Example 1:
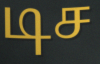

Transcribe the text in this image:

டிச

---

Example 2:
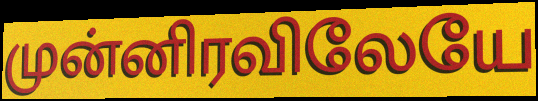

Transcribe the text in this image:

முன்னிரவிலேயே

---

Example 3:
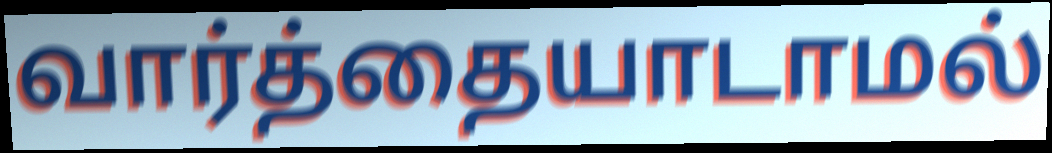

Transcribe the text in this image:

வார்த்தையாடாமல்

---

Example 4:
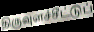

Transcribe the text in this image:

திருவுளச்சீட்டுப்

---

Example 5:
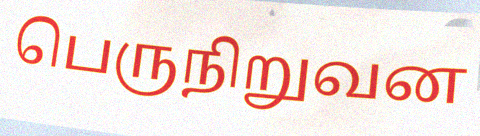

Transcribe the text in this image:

பெருநிறுவன